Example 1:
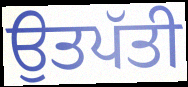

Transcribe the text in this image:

ਉਤਪੱਤੀ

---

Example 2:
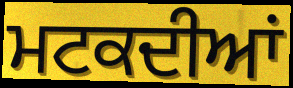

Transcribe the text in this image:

ਮਟਕਦੀਆਂ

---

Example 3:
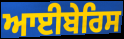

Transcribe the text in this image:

ਆਈਬੇਰਿਸ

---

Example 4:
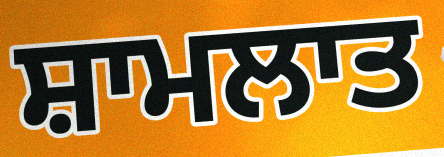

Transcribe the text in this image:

ਸ਼ਾਮਲਾਤ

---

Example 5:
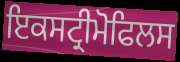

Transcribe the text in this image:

ਇਕਸਟ੍ਰੀਮੋਫਿਲਸ